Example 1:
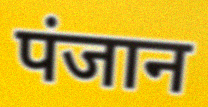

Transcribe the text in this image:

पंजान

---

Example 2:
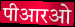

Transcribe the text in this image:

पीआरओ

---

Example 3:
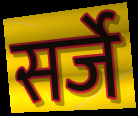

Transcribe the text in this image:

सर्जे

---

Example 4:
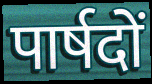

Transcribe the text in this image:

पार्षदों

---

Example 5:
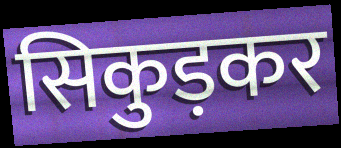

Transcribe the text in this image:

सिकुड़कर